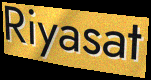
Riyasat